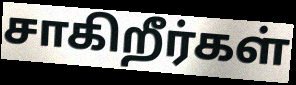
சாகிறீர்கள்